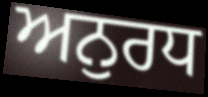
ਅਨੁਰਧ